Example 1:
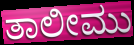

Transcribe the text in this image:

ತಾಲೀಮು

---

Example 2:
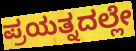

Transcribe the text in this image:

ಪ್ರಯತ್ನದಲ್ಲೇ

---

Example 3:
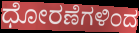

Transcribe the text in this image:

ಧೋರಣೆಗಳಿಂದ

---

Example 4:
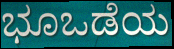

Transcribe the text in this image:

ಭೂಒಡೆಯ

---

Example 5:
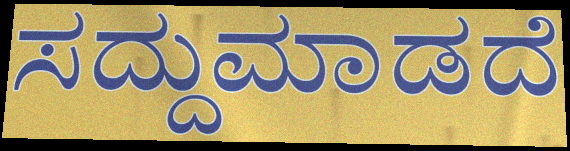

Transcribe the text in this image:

ಸದ್ದುಮಾಡದೆ